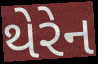
થેરેન